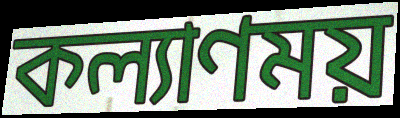
কল্যাণময়